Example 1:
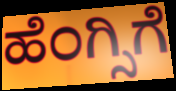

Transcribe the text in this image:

ಹೆಂಗ್ಸಿಗೆ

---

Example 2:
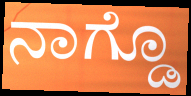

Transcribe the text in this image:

ನಾಗ್ಡೊ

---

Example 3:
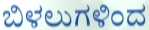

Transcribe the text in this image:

ಬಿಳಲುಗಳಿಂದ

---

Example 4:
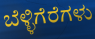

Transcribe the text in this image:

ಬೆಳ್ಳಿಗೆರೆಗಳು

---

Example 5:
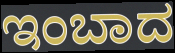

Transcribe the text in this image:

ಇಂಬಾದ